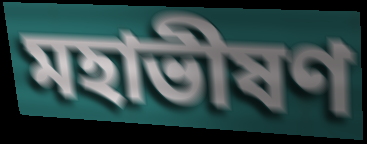
মহাভীষণ